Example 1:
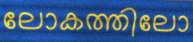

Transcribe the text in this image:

ലോകത്തിലോ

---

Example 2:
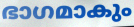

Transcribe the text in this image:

ഭാഗമാകും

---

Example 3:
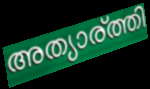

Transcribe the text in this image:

അത്യാര്ത്തി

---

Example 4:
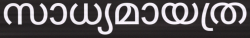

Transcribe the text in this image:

സാധ്യമായത്ര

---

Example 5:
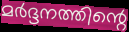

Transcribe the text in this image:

മർദ്ദനത്തിന്റെ